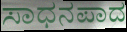
ಸಾಧನಪಾದ